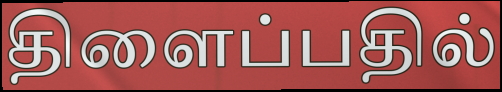
திளைப்பதில்